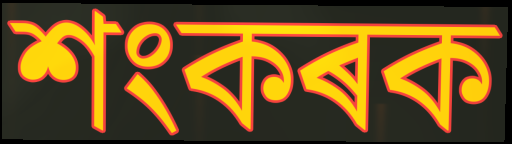
শংকৰক